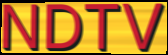
NDTV